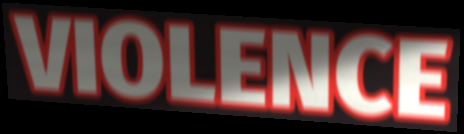
VIOLENCE